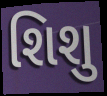
શિશુ